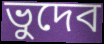
ভুদেব